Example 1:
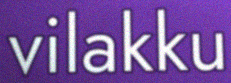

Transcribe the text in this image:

vilakku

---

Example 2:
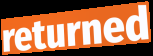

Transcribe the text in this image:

returned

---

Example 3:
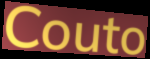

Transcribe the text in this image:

Couto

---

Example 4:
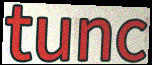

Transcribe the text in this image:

tunc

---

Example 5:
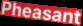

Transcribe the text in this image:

Pheasant